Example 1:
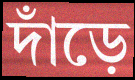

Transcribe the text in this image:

দাঁড়ে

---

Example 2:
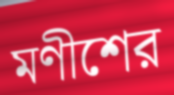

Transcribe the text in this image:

মণীশের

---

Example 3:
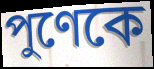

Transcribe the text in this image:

পুণেকে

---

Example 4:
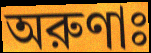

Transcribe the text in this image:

অরুণাঃ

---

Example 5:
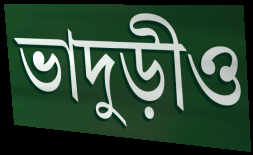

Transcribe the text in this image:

ভাদুড়ীও